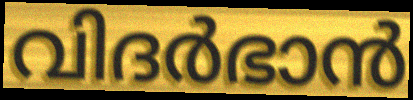
വിദർഭാൻ